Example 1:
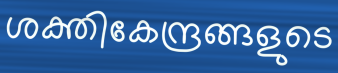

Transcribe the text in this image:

ശക്തികേന്ദ്രങ്ങളുടെ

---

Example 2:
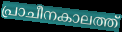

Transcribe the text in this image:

പ്രാചീനകാലത്ത്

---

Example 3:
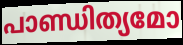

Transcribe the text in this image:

പാണ്ഡിത്യമോ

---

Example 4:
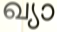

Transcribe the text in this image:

ഖ്യാ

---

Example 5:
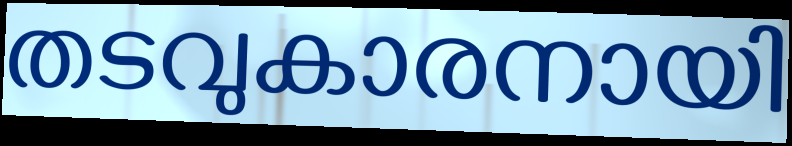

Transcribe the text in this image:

തടവുകാരനായി